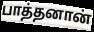
பாத்தனான்